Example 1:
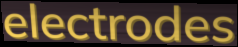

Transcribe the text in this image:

electrodes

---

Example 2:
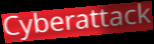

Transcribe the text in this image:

Cyberattack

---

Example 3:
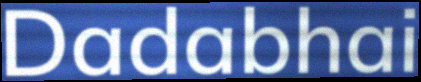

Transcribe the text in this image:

Dadabhai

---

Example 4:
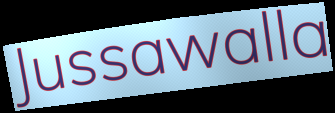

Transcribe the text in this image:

Jussawalla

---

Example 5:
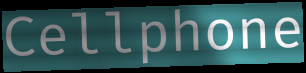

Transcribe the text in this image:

Cellphone